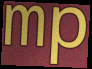
mp